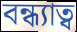
বন্ধ্যাত্ব